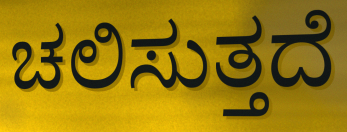
ಚಲಿಸುತ್ತದೆ